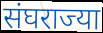
संघराज्या